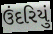
ઉંદરિયું